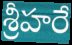
శ్రీహరే